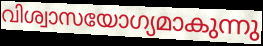
വിശ്വാസയോഗ്യമാകുന്നു